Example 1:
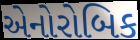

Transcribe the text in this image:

એનોરોબિક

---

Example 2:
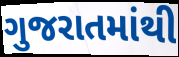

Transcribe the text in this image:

ગુજરાતમાંથી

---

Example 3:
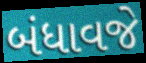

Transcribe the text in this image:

બંધાવજે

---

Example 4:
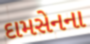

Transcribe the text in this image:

દામસેનના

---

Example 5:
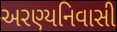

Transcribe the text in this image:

અરણ્યનિવાસી